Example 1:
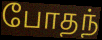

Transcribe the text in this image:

போதந்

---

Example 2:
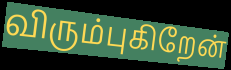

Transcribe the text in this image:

விரும்புகிறேன்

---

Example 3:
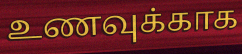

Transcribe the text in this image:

உணவுக்காக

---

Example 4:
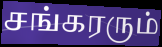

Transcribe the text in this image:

சங்கரரும்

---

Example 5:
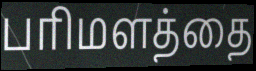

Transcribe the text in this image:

பரிமளத்தை